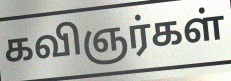
கவிஞர்கள்